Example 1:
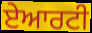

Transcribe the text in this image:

ਏਆਰਟੀ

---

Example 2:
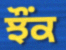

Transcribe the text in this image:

ਝੌਂਕ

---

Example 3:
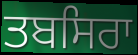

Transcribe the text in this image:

ਤਬਸਿਰਾ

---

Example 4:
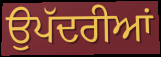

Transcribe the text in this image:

ਉਪੱਦਰੀਆਂ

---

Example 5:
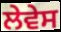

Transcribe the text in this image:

ਲੇਵੇਸ